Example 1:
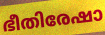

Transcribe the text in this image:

ഭീതിരേഷാ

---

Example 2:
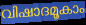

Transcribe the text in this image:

വിഷാദമൂകാം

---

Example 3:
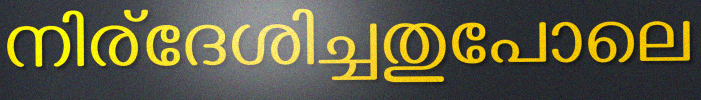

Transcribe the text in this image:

നിര്ദേശിച്ചതുപോലെ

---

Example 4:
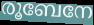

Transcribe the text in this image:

രൂബേനേ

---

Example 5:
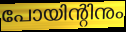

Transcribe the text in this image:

പോയിന്റിനും